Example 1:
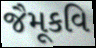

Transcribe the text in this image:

જૈમૂકવિ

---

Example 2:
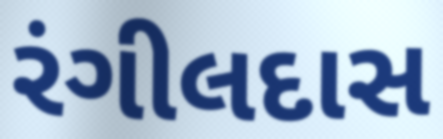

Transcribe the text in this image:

રંગીલદાસ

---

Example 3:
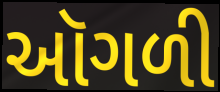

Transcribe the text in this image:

ઑગળી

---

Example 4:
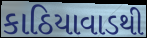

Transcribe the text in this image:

કાઠિયાવાડથી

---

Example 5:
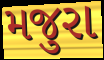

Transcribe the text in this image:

મજુરા